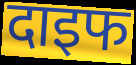
दाइफ